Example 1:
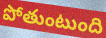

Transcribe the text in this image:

పోతుంటుంది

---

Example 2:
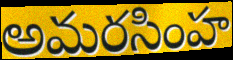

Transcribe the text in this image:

అమరసింహ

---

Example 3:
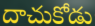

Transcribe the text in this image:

దాచుకోడు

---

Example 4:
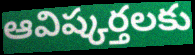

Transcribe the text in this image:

ఆవిష్కర్తలకు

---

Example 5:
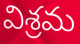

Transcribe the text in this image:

విశ్రమ